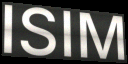
ISIM